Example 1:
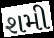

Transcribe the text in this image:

શમી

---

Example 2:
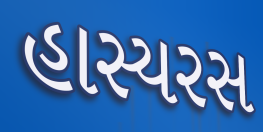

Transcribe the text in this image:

હાસ્યરસ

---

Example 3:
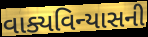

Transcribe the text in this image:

વાક્યવિન્યાસની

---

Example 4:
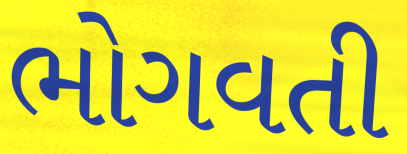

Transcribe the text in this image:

ભોગવતી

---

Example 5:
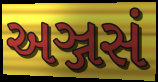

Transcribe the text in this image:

અઞ્જસં